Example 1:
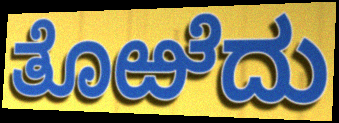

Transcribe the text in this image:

ತೊಱೆದು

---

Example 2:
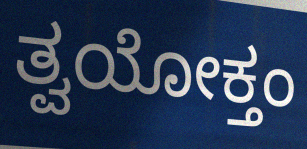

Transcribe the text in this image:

ತ್ವಯೋಕ್ತಂ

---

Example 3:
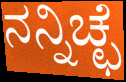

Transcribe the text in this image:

ನನ್ನಿಚ್ಛೆ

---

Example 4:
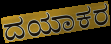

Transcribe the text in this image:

ದಯಾಕರ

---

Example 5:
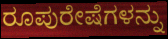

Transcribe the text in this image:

ರೂಪುರೇಷೆಗಳನ್ನು